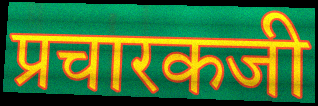
प्रचारकजी